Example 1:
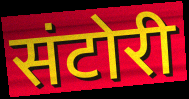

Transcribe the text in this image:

संटोरी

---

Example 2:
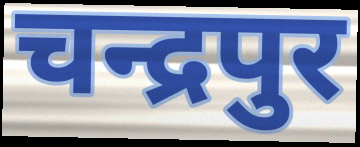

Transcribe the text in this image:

चन्द्रपुर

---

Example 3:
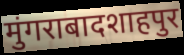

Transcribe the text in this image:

मुंगराबादशाहपुर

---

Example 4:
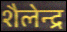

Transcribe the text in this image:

शैलेन्द्र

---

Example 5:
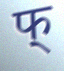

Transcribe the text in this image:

फ्